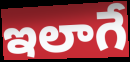
ఇలాగే